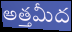
అత్తమీద